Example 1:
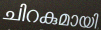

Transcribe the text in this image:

ചിറകുമായി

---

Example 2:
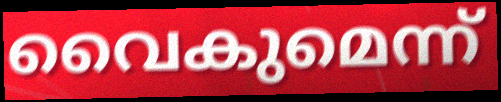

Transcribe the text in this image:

വൈകുമെന്ന്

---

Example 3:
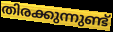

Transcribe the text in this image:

തിരക്കുന്നുണ്ട്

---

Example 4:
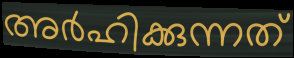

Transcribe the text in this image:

അർഹിക്കുന്നത്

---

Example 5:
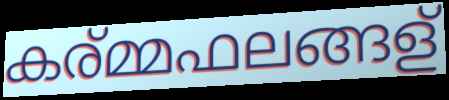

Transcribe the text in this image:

കര്മ്മഫലങ്ങള്